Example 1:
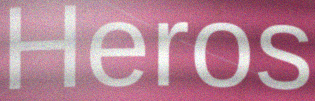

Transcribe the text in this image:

Heros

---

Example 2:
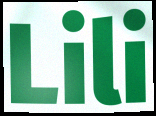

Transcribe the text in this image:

Lili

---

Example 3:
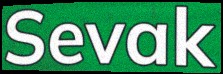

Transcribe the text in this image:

Sevak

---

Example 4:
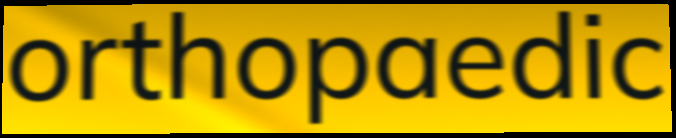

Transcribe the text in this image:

orthopaedic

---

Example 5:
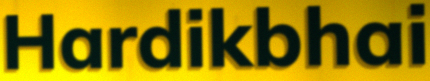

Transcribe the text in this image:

Hardikbhai